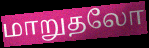
மாறுதலோ